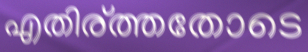
എതിര്ത്തതോടെ